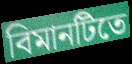
বিমানটিতে